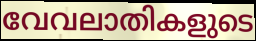
വേവലാതികളുടെ